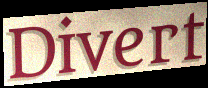
Divert